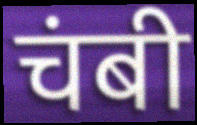
चंबी